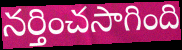
నర్తించసాగింది